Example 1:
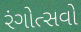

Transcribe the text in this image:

રંગોત્સવો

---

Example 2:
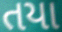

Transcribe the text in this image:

તયા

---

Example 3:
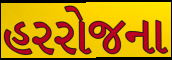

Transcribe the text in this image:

હરરોજના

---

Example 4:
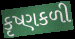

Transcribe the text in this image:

કૃષ્ણકળી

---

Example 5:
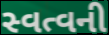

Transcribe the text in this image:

સ્વત્વની